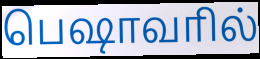
பெஷாவரில்